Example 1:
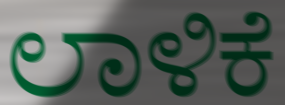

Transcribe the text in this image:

ಲಾಳಿಕೆ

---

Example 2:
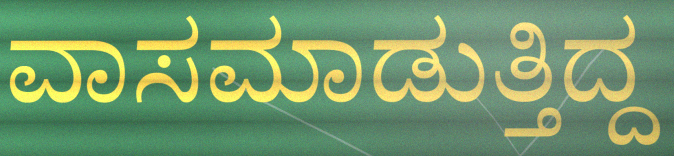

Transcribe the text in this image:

ವಾಸಮಾಡುತ್ತಿದ್ದ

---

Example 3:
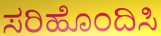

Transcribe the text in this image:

ಸರಿಹೊಂದಿಸಿ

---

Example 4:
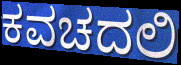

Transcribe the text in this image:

ಕವಚದಲಿ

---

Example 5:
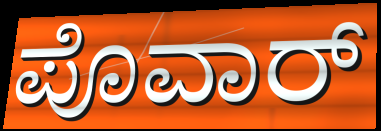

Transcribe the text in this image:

ಪೊವಾರ್